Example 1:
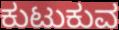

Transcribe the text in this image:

ಕುಟುಕುವ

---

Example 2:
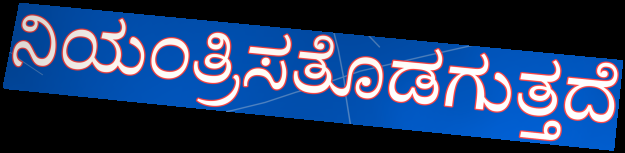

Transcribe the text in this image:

ನಿಯಂತ್ರಿಸತೊಡಗುತ್ತದೆ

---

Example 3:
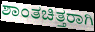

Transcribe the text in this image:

ಶಾಂತಚಿತ್ತರಾಗಿ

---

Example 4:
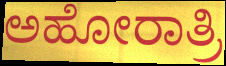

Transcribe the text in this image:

ಅಹೋರಾತ್ರಿ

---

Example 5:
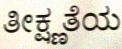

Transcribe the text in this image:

ತೀಕ್ಷ್ಣತೆಯ